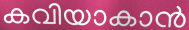
കവിയാകാൻ